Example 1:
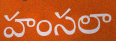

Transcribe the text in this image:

హంసలా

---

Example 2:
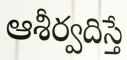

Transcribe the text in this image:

ఆశీర్వదిస్తే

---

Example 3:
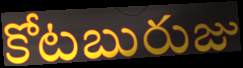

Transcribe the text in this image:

కోటబురుజు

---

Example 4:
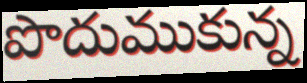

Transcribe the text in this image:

పొదుముకున్న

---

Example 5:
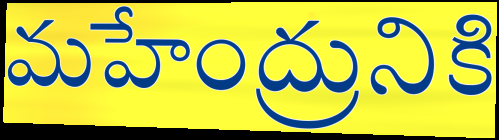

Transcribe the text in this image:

మహేంద్రునికి